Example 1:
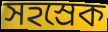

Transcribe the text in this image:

সহস্রেক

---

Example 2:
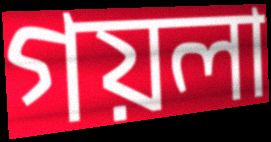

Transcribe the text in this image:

গয়লা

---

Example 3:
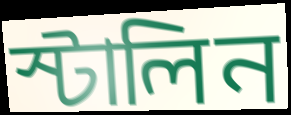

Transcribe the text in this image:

স্টালিন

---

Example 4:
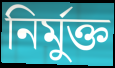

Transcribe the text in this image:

নির্মুক্ত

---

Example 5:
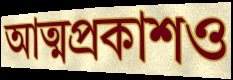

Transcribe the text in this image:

আত্মপ্রকাশও